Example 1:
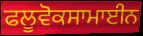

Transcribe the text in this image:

ਫਲੂਵੋਕਸਾਮਾਈਨ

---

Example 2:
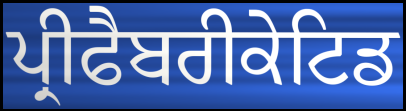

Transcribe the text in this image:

ਪ੍ਰੀਫੈਬਰੀਕੇਟਿਡ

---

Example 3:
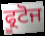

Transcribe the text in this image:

ਫ੍ਰੂਟੋਜ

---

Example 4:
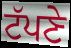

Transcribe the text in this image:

ਟੱਪਣੇ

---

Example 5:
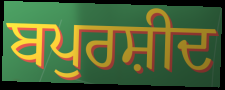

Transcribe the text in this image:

ਬਪੁਰਸ਼ੀਦ